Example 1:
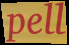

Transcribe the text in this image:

pell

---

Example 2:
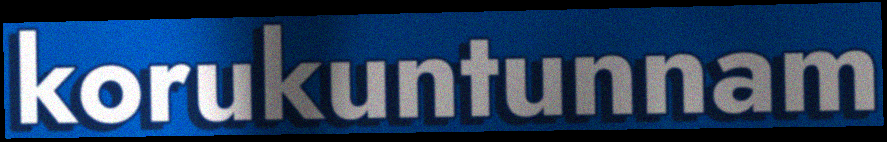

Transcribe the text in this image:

korukuntunnam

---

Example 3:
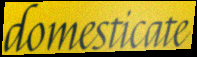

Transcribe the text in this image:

domesticate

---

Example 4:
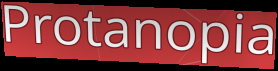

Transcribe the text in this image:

Protanopia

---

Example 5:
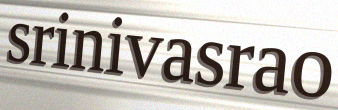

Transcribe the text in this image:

srinivasrao